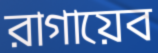
রাগায়েব